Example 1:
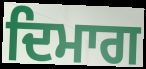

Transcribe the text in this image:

ਦਿਮਾਗ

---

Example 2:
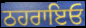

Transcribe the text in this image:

ਠਹਰਾਇਓ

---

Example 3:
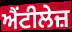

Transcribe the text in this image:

ਐਂਟੀਲੇਜ਼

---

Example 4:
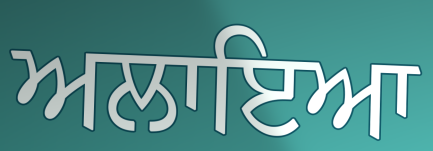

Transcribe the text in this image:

ਅਲਾਇਆ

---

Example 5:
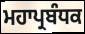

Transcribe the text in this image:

ਮਹਾਪ੍ਰਬੰਧਕ